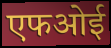
एफओई